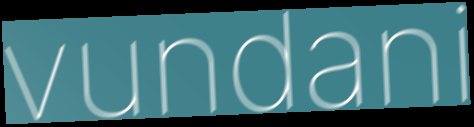
vundani